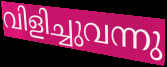
വിളിച്ചുവന്നു